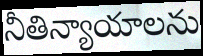
నీతిన్యాయాలను